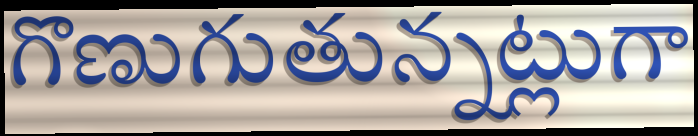
గొణుగుతున్నట్లుగా